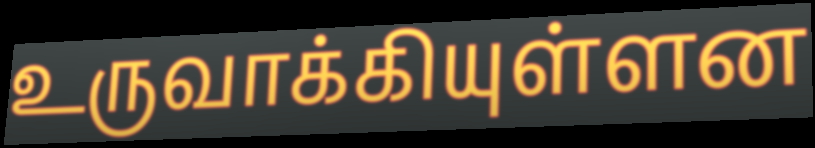
உருவாக்கியுள்ளன